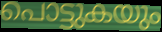
പൊട്ടുകയും